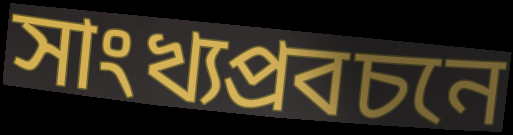
সাংখ্যপ্রবচনে